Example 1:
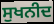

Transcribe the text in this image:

ਸੁਖਨੀਦ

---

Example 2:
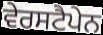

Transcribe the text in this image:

ਵੇਰਸਟੈਪੇਨ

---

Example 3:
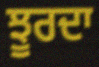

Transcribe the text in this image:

ਝੂਰਦਾ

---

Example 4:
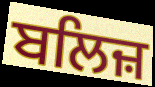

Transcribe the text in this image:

ਬਲਿਜ਼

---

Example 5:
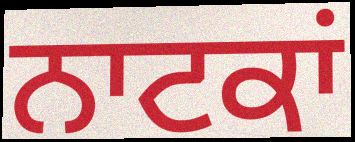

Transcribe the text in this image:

ਨਾਟਕਾਂ